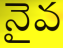
నైవ